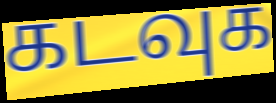
கடவுக